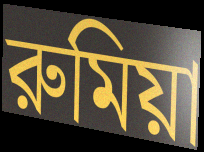
রুমিয়া